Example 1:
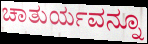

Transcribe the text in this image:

ಚಾತುರ್ಯವನ್ನೂ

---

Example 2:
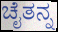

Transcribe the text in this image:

ಚೈತನ್ನ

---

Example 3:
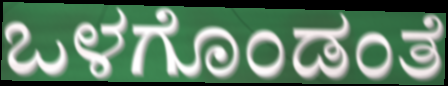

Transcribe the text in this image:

ಒಳಗೊಂಡಂತೆ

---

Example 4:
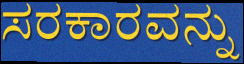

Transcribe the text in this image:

ಸರಕಾರವನ್ನು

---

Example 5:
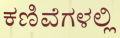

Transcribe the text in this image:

ಕಣಿವೆಗಳಲ್ಲಿ